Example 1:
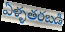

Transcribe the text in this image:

ఏళ్ళతరబడి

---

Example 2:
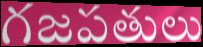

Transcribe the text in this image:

గజపతులు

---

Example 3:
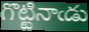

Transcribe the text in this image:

గొట్టినాఁడు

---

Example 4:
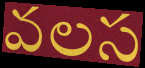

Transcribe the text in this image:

వలస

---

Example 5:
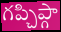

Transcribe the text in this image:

గప్చిప్గా